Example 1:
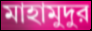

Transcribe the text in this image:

মাহামুদুর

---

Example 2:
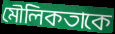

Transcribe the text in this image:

মৌলিকতাকে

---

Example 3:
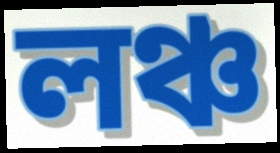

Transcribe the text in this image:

লঞ্চ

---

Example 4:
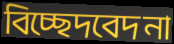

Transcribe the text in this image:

বিচ্ছেদবেদনা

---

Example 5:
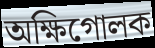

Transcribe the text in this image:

অক্ষিগোলক